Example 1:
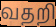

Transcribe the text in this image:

வதறி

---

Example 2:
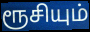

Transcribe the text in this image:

ரூசியும்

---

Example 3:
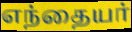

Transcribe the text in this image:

எந்தையர்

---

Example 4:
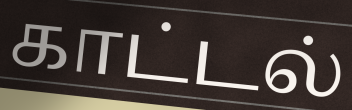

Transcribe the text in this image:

காட்டல்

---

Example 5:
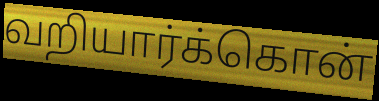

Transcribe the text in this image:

வறியார்க்கொன்